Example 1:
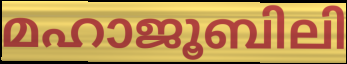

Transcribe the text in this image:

മഹാജൂബിലി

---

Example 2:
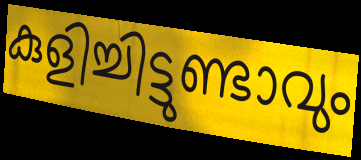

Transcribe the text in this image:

കുളിച്ചിട്ടുണ്ടാവും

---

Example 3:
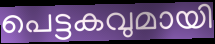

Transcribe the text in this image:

പെട്ടകവുമായി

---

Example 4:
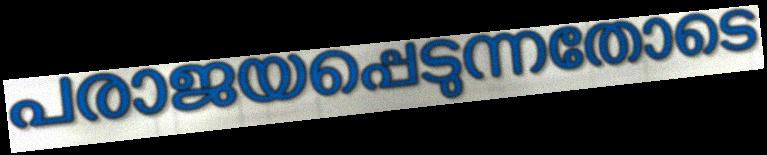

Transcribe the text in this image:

പരാജയപ്പെടുന്നതോടെ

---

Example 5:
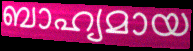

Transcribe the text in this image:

ബാഹ്യമായ